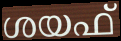
ശയഫ്